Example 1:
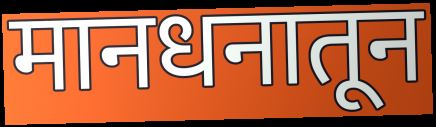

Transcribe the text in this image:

मानधनातून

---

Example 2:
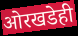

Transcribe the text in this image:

ओरखडेही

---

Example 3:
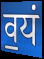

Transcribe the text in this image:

व॒यं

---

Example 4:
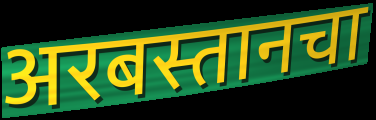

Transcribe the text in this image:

अरबस्तानचा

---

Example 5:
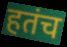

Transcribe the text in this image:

हतंच